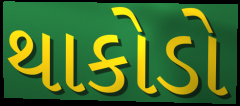
થાકોડો